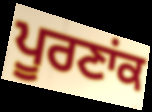
ਪੂਰਣਾਂਕ